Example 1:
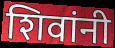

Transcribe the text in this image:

शिवांनी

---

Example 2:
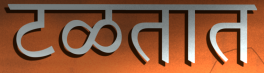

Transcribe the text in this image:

टळतात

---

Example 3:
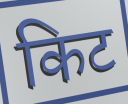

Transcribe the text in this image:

किट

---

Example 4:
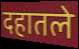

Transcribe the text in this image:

दहातले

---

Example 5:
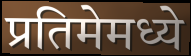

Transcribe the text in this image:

प्रतिमेमध्ये